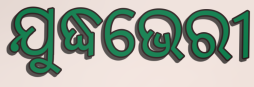
ଯୁଦ୍ଧଭେରୀ